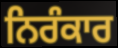
ਨਿਰੰਕਾਰ